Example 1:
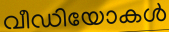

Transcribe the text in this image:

വീഡിയോകൾ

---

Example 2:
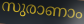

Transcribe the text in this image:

സുരാണാം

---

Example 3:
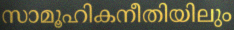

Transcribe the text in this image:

സാമൂഹികനീതിയിലും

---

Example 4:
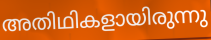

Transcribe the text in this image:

അതിഥികളായിരുന്നു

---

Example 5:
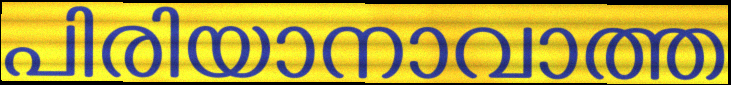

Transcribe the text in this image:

പിരിയാനാവാത്ത